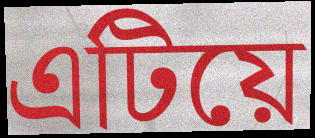
এটিয়ে